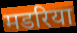
मडरिया